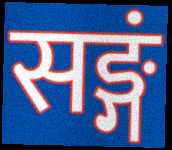
सङ्गं